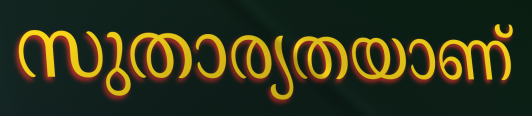
സുതാര്യതയാണ്